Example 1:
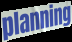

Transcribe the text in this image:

planning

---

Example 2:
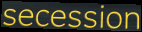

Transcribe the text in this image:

secession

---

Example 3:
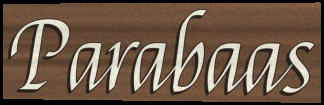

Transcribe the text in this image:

Parabaas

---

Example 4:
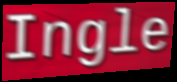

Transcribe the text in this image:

Ingle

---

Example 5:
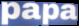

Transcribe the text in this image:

papa